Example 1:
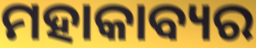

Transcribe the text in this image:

ମହାକାବ୍ୟର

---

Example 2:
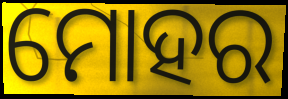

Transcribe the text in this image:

ମୋହର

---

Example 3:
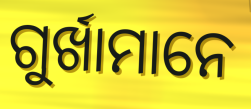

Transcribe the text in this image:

ଗୁର୍ଖାମାନେ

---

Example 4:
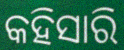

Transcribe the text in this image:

କହିସାରି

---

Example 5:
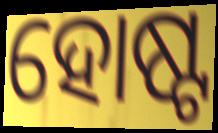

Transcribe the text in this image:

ହୋଷ୍ଟ